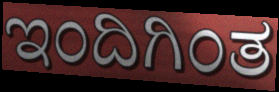
ಇಂದಿಗಿಂತ